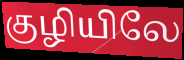
குழியிலே